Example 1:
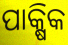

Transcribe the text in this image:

ପାକ୍ଷିକ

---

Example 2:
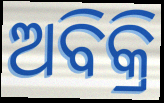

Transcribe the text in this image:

ଅବିକ୍ରି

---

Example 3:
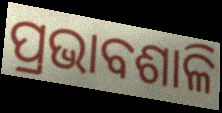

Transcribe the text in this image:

ପ୍ରଭାବଶାଳି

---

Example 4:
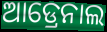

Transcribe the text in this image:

ଆଡ୍ରେନାଲ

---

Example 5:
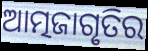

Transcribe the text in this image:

ଆତ୍ମଜାଗୃତିର